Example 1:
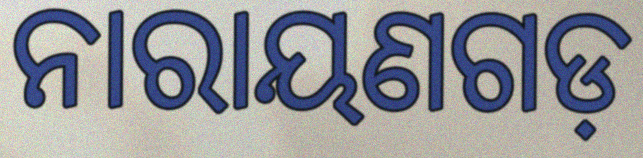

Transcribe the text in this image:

ନାରାୟଣଗଡ଼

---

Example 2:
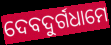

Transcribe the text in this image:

ଦେବଦୁର୍ଗଧାମେ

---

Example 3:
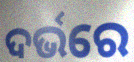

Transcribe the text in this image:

ଦର୍ଭରେ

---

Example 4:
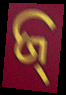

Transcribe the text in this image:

ଜ୍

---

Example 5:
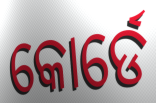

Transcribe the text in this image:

କୋର୍ଡେ